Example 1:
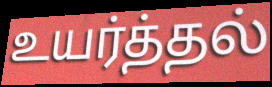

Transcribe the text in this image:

உயர்த்தல்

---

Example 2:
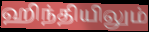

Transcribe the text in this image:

ஹிந்தியிலும்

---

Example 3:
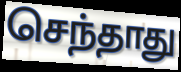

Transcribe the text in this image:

செந்தாது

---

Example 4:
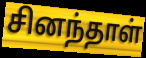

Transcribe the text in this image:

சினந்தாள்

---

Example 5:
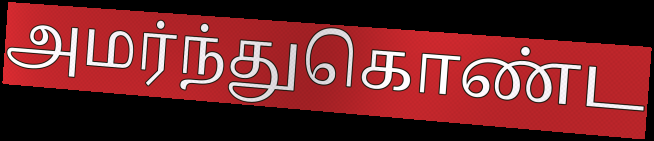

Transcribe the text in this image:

அமர்ந்துகொண்ட